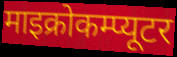
माइक्रोकम्प्यूटर